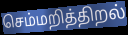
செம்மறித்திறல்